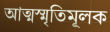
আত্মস্মৃতিমূলক